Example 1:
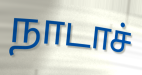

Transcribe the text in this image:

நாடாச்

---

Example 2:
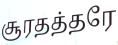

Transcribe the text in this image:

சூரதத்தரே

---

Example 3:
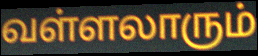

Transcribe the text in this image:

வள்ளலாரும்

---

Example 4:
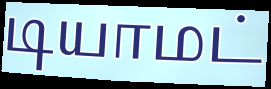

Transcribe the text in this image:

டியாமட்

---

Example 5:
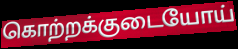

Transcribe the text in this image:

கொற்றக்குடையோய்